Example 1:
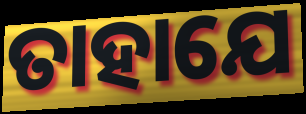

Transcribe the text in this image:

ତାହାଯେ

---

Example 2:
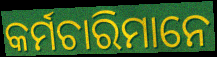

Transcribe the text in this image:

କର୍ମଚାରିମାନେ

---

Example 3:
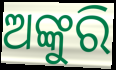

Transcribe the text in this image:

ଅଙ୍କୁରି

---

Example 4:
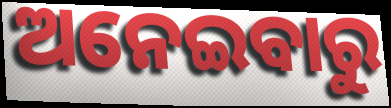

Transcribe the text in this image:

ଅନେଇବାରୁ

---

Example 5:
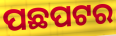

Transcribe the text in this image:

ପଛପଟର